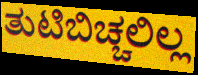
ತುಟಿಬಿಚ್ಚಲಿಲ್ಲ